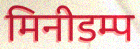
मिनीडम्प